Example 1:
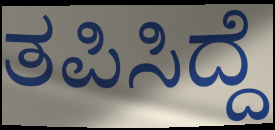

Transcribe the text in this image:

ತಪಿಸಿದ್ದೆ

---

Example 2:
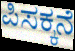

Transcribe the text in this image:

ಪಿಸಕ್ಕನೆ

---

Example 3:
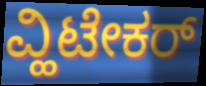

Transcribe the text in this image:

ವ್ಹಿಟೇಕರ್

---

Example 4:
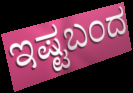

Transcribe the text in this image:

ಇಷ್ಟಬಂದ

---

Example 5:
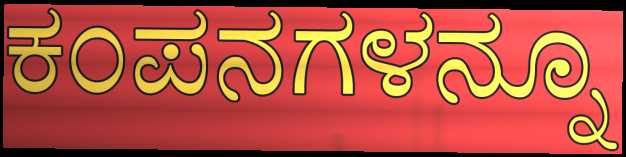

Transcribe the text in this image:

ಕಂಪನಗಳನ್ನೂ